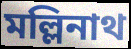
মল্লিনাথ